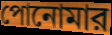
পোনোমার